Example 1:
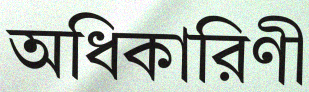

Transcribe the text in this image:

অধিকারিণী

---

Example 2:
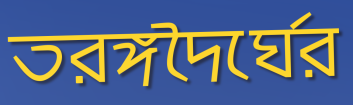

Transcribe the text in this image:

তরঙ্গদৈর্ঘের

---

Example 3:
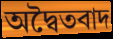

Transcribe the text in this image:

অদ্বৈতবাদ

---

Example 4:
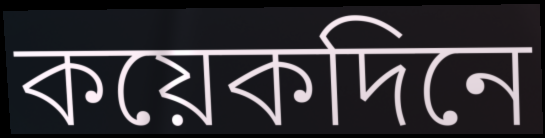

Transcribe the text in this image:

কয়েকদিনে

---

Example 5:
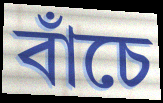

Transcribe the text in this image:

বাঁচে